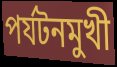
পর্যটনমুখী